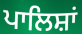
ਪਾਲਿਸ਼ਾਂ